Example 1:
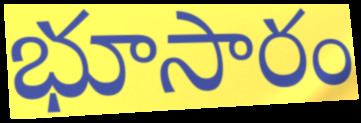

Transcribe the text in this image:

భూసారం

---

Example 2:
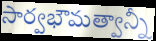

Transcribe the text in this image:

సార్వభౌమత్వాన్నీ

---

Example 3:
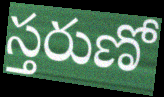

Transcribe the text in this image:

స్తరుణో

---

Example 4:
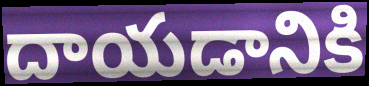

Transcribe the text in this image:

దాయడానికి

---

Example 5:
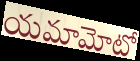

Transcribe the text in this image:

యమామోటో